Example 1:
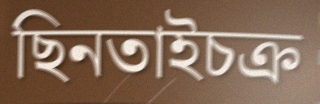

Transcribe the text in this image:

ছিনতাইচক্র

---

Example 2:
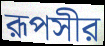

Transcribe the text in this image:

রূপসীর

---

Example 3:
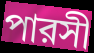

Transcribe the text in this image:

পারসী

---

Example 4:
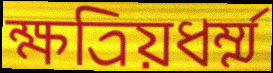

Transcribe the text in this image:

ক্ষত্রিয়ধর্ম্ম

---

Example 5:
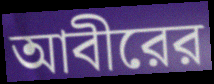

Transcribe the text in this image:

আবীরের